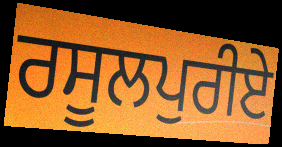
ਰਸੂਲਪੁਰੀਏ